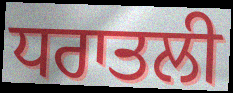
ਧਰਾਤਲੀ